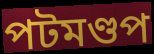
পটমণ্ডপ